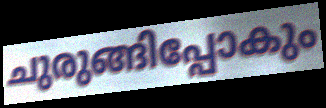
ചുരുങ്ങിപ്പോകും